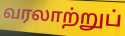
வரலாற்றுப்